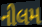
નીલમ